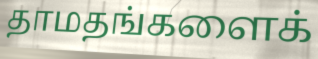
தாமதங்களைக்